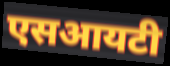
एसआयटी